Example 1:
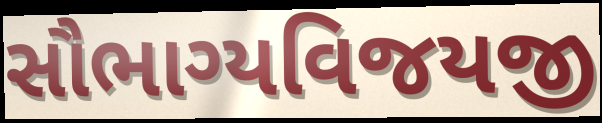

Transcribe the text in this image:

સૌભાગ્યવિજયજી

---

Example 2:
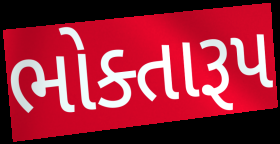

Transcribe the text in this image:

ભોક્તારૂપ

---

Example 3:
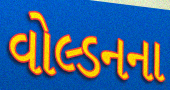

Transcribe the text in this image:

વોલ્ડનના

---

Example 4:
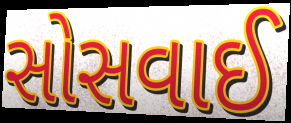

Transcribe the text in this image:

સોસવાઈ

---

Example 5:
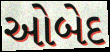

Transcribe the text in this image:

ઓબેદ